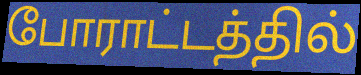
போராட்டத்தில்